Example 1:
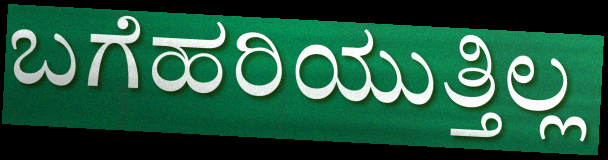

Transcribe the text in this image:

ಬಗೆಹರಿಯುತ್ತಿಲ್ಲ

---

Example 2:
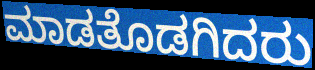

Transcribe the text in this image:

ಮಾಡತೊಡಗಿದರು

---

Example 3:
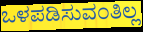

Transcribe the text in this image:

ಒಳಪಡಿಸುವಂತಿಲ್ಲ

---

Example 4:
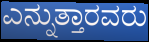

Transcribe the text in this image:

ಎನ್ನುತ್ತಾರವರು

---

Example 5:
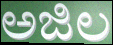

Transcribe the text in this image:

ಅಜಿಲ